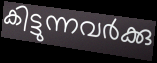
കിട്ടുന്നവർക്കു